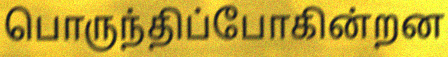
பொருந்திப்போகின்றன